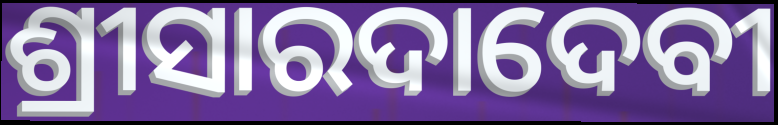
ଶ୍ରୀସାରଦାଦେବୀ